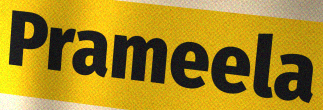
Prameela